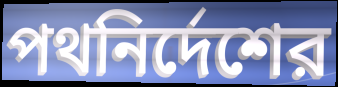
পথনির্দেশের